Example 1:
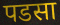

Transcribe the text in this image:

पडसा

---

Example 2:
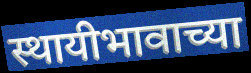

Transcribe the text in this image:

स्थायीभावाच्या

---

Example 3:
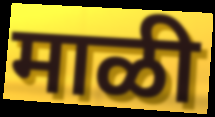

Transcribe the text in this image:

माळी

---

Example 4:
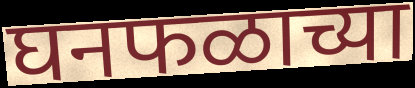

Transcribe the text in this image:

घनफळाच्या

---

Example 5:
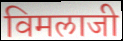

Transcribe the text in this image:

विमलाजी